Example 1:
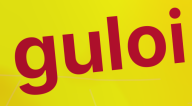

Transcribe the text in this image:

guloi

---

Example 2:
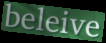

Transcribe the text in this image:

beleive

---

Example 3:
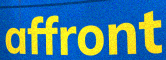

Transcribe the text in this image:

affront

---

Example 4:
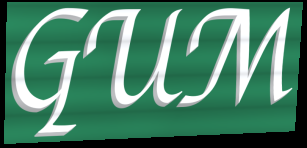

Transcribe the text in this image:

GUM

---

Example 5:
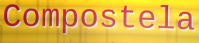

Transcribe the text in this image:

Compostela